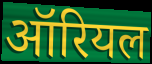
ऑरियल